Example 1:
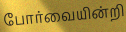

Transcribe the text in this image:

போர்வையின்றி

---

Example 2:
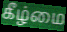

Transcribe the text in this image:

கீழ்மை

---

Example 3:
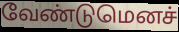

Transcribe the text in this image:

வேண்டுமெனச்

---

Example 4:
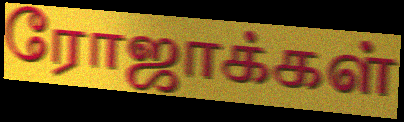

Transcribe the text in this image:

ரோஜாக்கள்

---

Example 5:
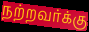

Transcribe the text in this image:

நற்றவர்க்கு